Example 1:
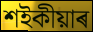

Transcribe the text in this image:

শইকীয়াৰ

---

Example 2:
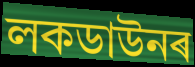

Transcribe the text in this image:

লকডাউনৰ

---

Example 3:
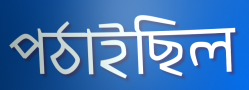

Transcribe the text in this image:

পঠাইছিল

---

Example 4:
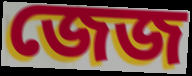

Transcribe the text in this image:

জেজ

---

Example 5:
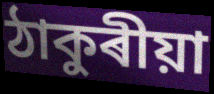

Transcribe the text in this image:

ঠাকুৰীয়া